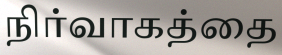
நிர்வாகத்தை